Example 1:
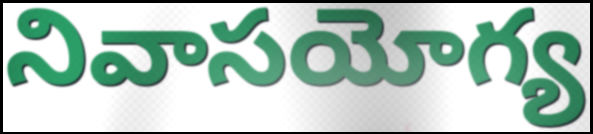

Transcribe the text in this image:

నివాసయోగ్య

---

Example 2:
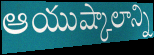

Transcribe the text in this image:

ఆయుష్కాలాన్ని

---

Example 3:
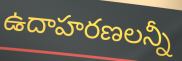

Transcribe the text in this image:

ఉదాహరణలన్నీ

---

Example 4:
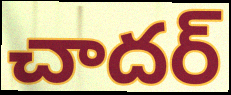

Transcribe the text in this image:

చాదర్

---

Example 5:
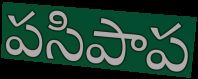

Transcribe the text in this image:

పసిపాప